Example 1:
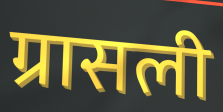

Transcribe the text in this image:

ग्रासली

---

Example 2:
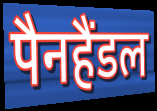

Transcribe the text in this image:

पैनहैंडल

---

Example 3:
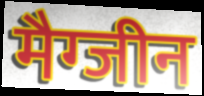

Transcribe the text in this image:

मैग्जीन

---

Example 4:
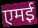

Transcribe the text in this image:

एमई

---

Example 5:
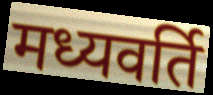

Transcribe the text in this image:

मध्यवर्ति